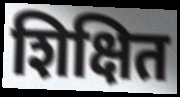
शिक्षित